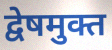
द्वेषमुक्त